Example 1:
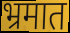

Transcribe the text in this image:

भ्रमात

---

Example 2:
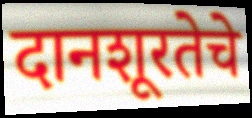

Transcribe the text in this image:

दानशूरतेचे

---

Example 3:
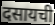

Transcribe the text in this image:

दसायची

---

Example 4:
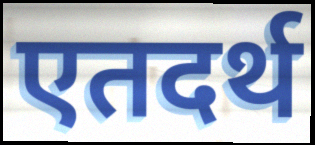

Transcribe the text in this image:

एतदर्थ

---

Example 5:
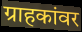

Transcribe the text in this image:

ग्राहकांवर